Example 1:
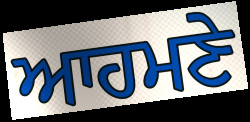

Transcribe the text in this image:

ਆਹਮਣੇ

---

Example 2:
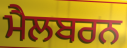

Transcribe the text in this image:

ਮੈਲਬਰਨ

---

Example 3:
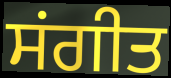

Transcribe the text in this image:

ਸਂਗੀਤ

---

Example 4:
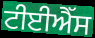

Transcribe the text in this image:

ਟੀਈਐੱਸ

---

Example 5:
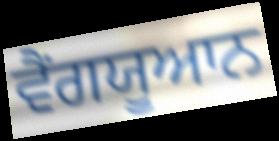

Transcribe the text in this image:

ਵੈਂਗਯੂਆਨ